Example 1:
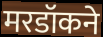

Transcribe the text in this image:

मरडॉकने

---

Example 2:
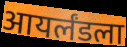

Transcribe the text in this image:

आयर्लंडला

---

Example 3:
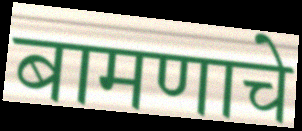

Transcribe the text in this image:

बामणाचे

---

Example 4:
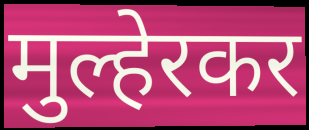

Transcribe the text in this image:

मुल्हेरकर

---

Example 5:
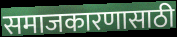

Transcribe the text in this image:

समाजकारणासाठी